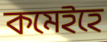
কমেইহে